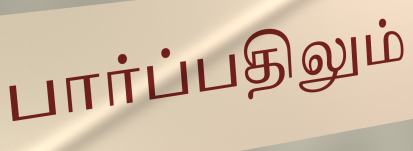
பார்ப்பதிலும்